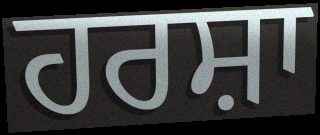
ਹਰਸ਼ਾ